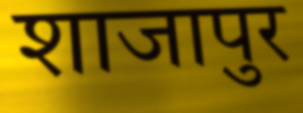
शाजापुर